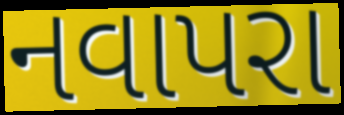
નવાપરા